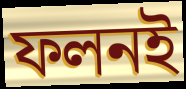
ফলনই